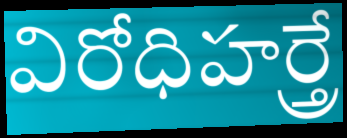
విరోధిహర్త్రే